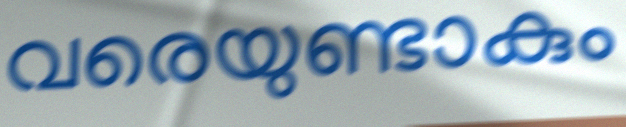
വരെയുണ്ടാകും